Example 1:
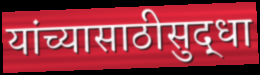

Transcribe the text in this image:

यांच्यासाठीसुद्धा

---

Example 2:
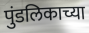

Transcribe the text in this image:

पुंडलिकाच्या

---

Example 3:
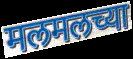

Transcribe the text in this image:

मलमलच्या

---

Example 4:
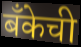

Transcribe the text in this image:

बँकेची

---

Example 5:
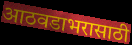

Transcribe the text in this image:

आठवडाभरासाठी